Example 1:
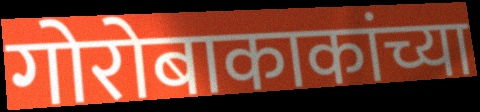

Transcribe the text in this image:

गोरोबाकाकांच्या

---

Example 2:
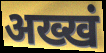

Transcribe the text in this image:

अख्खं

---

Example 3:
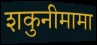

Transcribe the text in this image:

शकुनीमामा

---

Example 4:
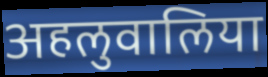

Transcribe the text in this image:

अहलुवालिया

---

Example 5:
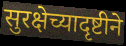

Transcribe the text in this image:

सुरक्षेच्यादृष्टीने